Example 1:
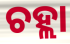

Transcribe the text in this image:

ଚହ୍ଲା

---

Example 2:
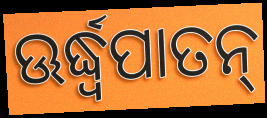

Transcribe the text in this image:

ଊର୍ଦ୍ଧ୍ବପାତନ୍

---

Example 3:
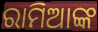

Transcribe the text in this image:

ରାମିଆଙ୍କ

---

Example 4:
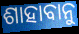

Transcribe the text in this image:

ଶାହାବାନୁ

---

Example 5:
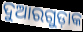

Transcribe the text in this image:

ଦୁଆରଗୁଡ଼ାକ